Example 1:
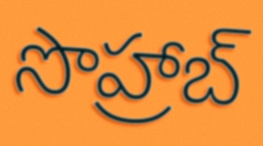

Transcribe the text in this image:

సొహ్రాబ్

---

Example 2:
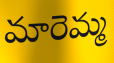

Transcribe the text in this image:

మారెమ్మ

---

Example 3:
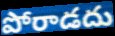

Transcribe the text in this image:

పోరాడదు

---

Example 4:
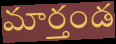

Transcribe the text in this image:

మార్తండ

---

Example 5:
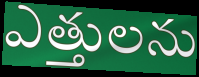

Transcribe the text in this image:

ఎత్తులను